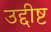
उद्दीष्ट